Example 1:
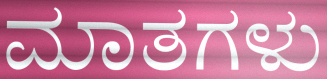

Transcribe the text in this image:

ಮಾತಗಳು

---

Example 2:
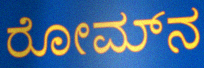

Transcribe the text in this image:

ರೋಮ್‌ನ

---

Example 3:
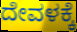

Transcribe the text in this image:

ದೇವಳಕ್ಕೆ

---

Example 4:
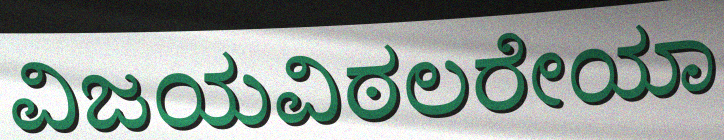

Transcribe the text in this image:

ವಿಜಯವಿಠಲರೇಯಾ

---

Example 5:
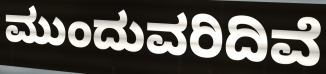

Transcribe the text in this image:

ಮುಂದುವರಿದಿವೆ